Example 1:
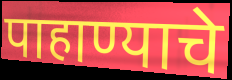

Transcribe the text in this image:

पाहाण्याचे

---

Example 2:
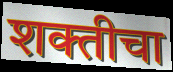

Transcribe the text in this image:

शक्‍तीचा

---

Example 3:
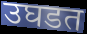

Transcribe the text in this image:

उघडत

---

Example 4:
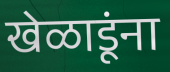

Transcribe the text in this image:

खेळाडूंना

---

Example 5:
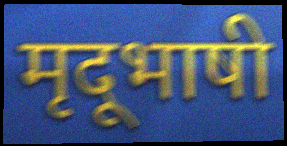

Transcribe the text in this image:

मृदूभाषी